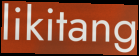
likitang